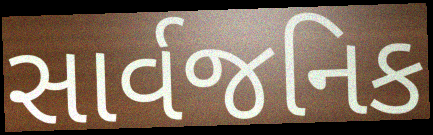
સાર્વજનિક